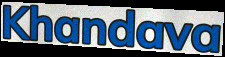
Khandava